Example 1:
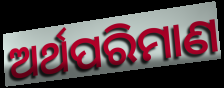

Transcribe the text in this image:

ଅର୍ଥପରିମାଣ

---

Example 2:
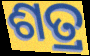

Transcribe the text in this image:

ଶତ୍ର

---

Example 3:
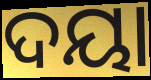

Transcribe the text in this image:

ଦୟା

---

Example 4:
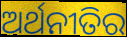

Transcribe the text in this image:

ଅର୍ଥନୀତିର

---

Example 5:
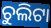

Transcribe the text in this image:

ଚୁଲିଟା